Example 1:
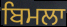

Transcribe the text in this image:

ਬਿਮਲਾ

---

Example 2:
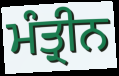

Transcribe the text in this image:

ਮੰਤ੍ਰੀਨ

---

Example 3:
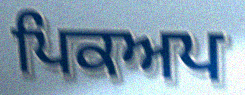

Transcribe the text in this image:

ਪਿਕਅਪ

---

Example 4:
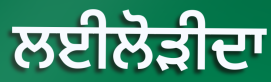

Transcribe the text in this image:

ਲਈਲੋੜੀਦਾ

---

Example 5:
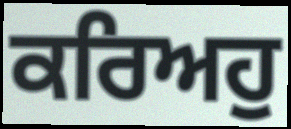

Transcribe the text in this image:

ਕਰਿਅਹੁ